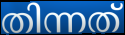
തിന്നത്